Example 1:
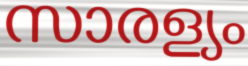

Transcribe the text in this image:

സാരള്യം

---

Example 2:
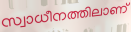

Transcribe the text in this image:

സ്വാധീനത്തിലാണ്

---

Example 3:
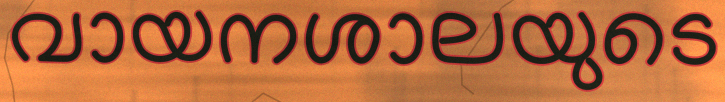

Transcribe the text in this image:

വായനശാലയുടെ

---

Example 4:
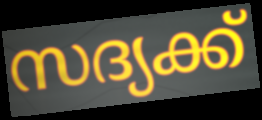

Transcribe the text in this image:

സദ്യക്ക്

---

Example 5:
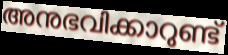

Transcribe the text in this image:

അനുഭവിക്കാറുണ്ട്